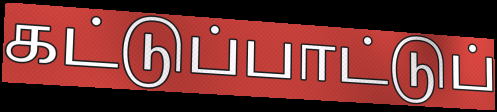
கட்டுப்பாட்டுப்